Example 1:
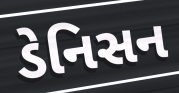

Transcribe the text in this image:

ડેનિસન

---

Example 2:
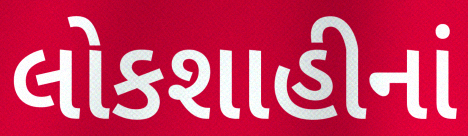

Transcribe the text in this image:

લોકશાહીનાં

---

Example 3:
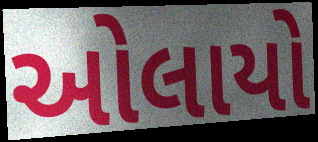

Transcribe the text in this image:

ઓલાયો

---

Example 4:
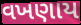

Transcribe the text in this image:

વખણાય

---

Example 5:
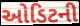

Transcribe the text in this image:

ઓડિટની